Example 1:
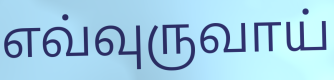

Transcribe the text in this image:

எவ்வுருவாய்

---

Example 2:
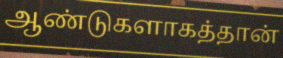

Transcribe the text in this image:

ஆண்டுகளாகத்தான்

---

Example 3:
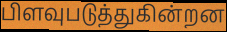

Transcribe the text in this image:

பிளவுபடுத்துகின்றன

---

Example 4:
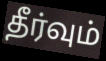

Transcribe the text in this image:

தீர்வும்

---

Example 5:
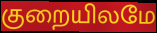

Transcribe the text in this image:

குறையிலமே